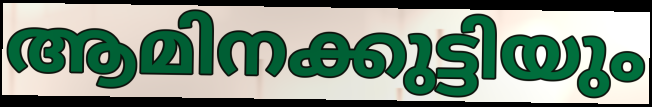
ആമിനക്കുട്ടിയും